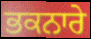
ਭਕਨਾਰੇ